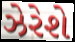
ઝેરેશે